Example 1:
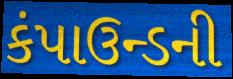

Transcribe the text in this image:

કંપાઉન્ડની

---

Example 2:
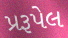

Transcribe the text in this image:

પ્રરૂપેલ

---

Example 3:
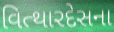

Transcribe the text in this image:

વિત્થારદેસના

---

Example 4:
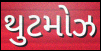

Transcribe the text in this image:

થુટમોઝ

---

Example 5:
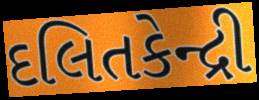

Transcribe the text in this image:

દલિતકેન્દ્રી